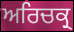
ਅਰਿਚਕ੍ਰ